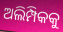
ଅଲିମ୍ପିକକୁ